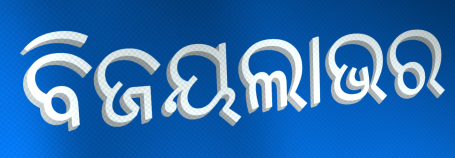
ବିଜୟଲାଭର